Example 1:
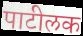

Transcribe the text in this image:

पाटीलक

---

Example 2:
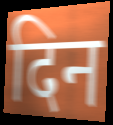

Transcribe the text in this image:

दिन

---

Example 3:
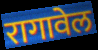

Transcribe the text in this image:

रागावेल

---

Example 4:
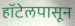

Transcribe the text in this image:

हॉटेलपासून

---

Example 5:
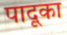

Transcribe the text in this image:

पादूका